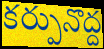
కర్పునొద్ద